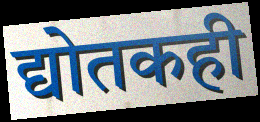
द्योतकही